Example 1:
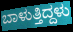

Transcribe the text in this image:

ಬಾಳುತ್ತಿದ್ದಳು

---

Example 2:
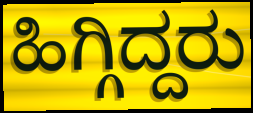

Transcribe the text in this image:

ಹಿಗ್ಗಿದ್ದರು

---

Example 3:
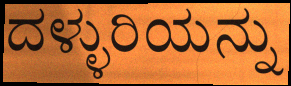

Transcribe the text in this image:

ದಳ್ಳುರಿಯನ್ನು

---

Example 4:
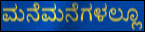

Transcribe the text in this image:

ಮನೆಮನೆಗಳಲ್ಲೂ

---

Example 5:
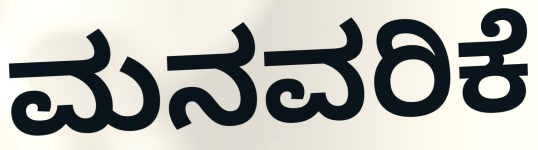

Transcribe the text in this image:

ಮನವರಿಕೆ